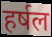
हर्षल